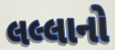
લલ્લાનો